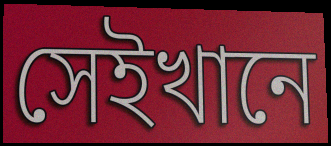
সেইখানে